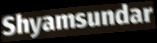
Shyamsundar